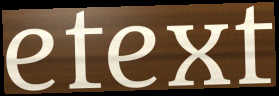
etext